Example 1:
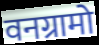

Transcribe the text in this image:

वनग्रामो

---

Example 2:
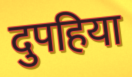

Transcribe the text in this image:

दुपहिया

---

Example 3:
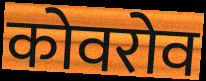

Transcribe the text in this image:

कोवरोव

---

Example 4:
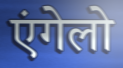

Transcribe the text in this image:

एंगेलो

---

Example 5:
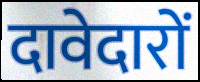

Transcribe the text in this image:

दावेदारों